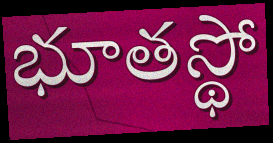
భూతస్థో